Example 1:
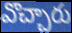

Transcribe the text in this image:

వొచ్చారు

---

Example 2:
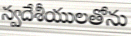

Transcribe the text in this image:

స్వదేశీయులతోను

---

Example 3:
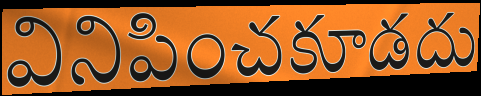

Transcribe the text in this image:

వినిపించకూడదు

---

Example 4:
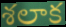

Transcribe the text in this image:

శలాక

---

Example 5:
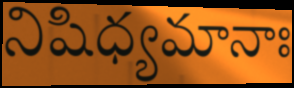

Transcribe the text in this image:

నిషిధ్యమానాః